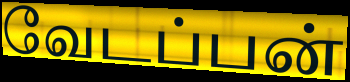
வேடப்பன்